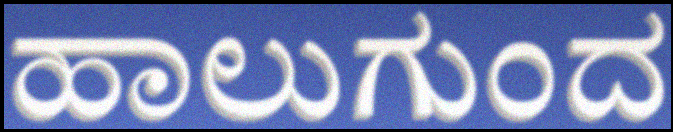
ಹಾಲುಗುಂದ